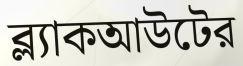
ব্ল্যাকআউটের